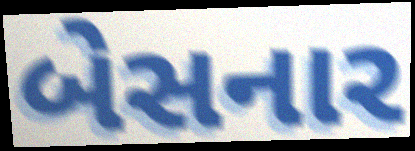
બેસનાર